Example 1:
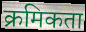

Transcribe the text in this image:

क्रमिकता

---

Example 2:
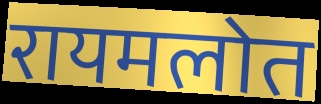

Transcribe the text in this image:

रायमलोत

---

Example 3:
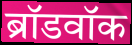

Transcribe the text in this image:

ब्रॉडवॉक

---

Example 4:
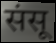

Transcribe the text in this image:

संसू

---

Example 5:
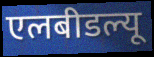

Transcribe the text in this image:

एलबीडल्यू